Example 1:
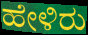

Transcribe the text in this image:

ಹೇಳಿರು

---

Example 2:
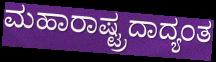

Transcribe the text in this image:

ಮಹಾರಾಷ್ಟ್ರದಾದ್ಯಂತ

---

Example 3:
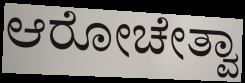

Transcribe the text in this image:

ಆರೋಚೇತ್ವಾ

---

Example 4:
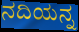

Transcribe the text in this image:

ನದಿಯನ್ನ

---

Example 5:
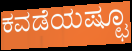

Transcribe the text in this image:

ಕವಡೆಯಷ್ಟೂ